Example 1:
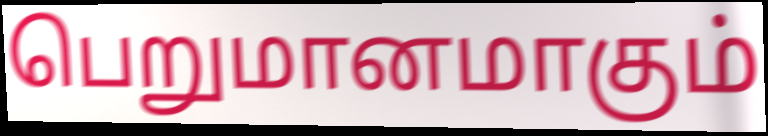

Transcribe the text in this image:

பெறுமானமாகும்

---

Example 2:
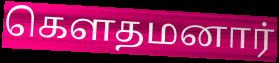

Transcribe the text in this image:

கெளதமனார்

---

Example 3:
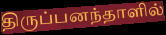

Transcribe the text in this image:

திருப்பனந்தாளில்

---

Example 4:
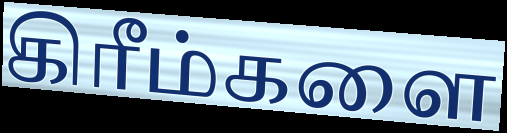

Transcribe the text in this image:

கிரீம்களை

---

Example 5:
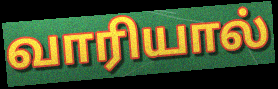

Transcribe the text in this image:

வாரியால்